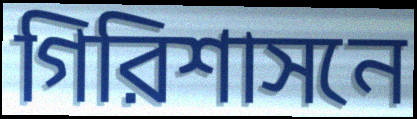
গিরিশাসনে